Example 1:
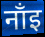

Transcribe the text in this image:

नाँइ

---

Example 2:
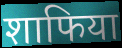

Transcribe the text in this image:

शाफिया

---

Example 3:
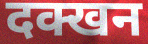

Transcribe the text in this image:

दक्खन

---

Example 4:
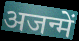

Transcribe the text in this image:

अजन्में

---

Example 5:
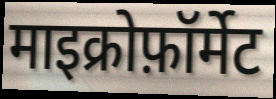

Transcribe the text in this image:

माइक्रोफ़ॉर्मेट